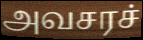
அவசரச்